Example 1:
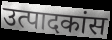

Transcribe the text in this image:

उत्पादकांस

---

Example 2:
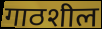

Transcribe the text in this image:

गाठशील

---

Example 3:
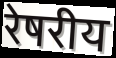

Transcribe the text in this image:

रेषरीय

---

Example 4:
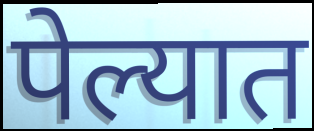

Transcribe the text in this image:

पेल्यात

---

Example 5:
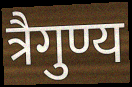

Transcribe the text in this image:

त्रैगुण्य